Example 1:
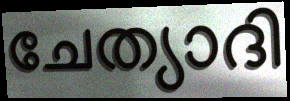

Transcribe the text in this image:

ചേത്യാദി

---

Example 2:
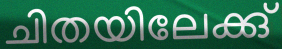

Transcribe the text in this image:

ചിതയിലേക്കു്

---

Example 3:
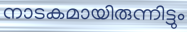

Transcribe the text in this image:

നാടകമായിരുന്നിട്ടും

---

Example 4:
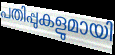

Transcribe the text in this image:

പതിപ്പുകളുമായി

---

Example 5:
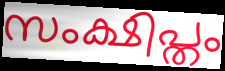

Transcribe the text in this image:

സംക്ഷിപ്തം